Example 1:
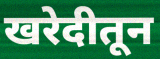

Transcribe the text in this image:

खरेदीतून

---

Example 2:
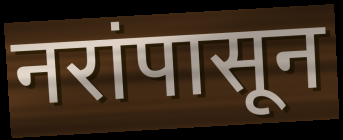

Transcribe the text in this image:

नरांपासून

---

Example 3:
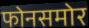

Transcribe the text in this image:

फोनसमोर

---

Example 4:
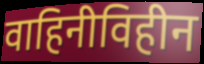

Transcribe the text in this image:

वाहिनीविहीन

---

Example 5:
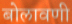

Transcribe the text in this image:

बोलावणी